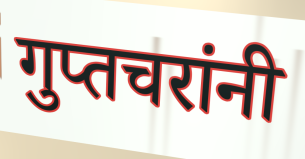
गुप्तचरांनी